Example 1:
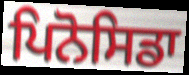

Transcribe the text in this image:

ਪਿਨੋਸਿਡਾ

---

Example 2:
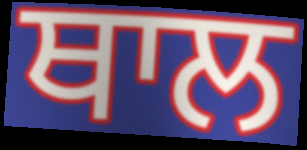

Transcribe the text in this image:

ਥਾਲ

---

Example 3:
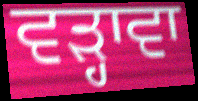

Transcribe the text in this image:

ਵੜ੍ਹਾਵਾ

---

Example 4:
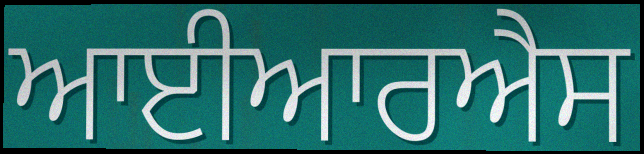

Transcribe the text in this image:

ਆਈਆਰਐਸ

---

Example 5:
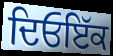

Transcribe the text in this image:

ਦਿਓਇੱਕ